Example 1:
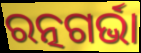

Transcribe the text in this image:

ରତ୍ନଗର୍ଭା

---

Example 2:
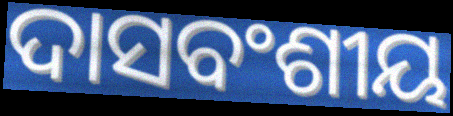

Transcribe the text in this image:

ଦାସବଂଶୀୟ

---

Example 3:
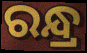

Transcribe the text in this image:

ରନ୍ଧ୍ର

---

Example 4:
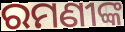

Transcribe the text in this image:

ରମଣୀଙ୍କ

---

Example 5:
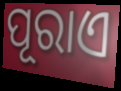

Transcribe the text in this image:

ପୂରାଏ